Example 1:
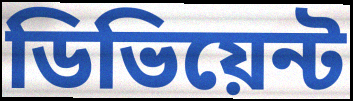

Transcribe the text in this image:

ডিভিয়েন্ট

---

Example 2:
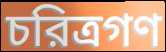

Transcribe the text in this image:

চরিত্রগণ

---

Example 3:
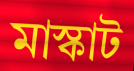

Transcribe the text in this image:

মাস্কাট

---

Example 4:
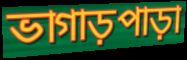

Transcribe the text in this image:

ভাগাড়পাড়া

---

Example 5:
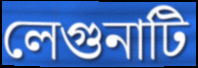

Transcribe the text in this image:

লেগুনাটি